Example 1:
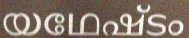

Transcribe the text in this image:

യഥേഷ്ടം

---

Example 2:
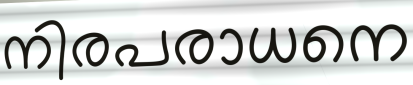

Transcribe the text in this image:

നിരപരാധനെ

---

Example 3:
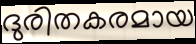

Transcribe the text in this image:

ദുരിതകരമായ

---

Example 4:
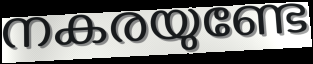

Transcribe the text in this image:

നകരയുണ്ടേ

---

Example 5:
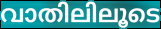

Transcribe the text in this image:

വാതിലിലൂടെ